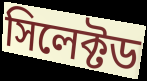
সিলেক্টড